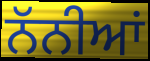
ਨੱਨੀਆਂ